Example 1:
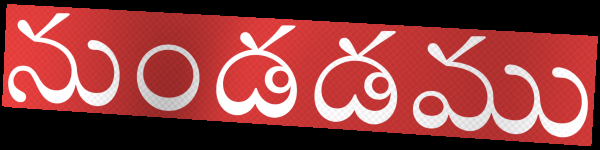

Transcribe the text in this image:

నుండడము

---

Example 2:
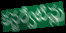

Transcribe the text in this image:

కన్జర్వేటివ్లు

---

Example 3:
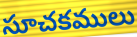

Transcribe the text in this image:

సూచకములు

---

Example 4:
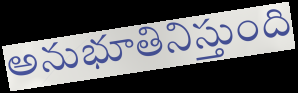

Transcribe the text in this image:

అనుభూతినిస్తుంది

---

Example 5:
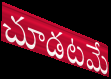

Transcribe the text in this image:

చూడటమే